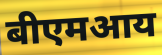
बीएमआय